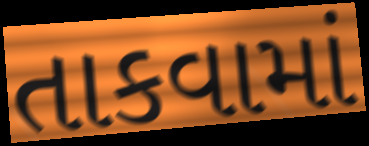
તાકવામાં